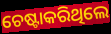
ଚେଷ୍ଟାକରିଥିଲେ